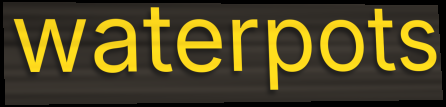
waterpots